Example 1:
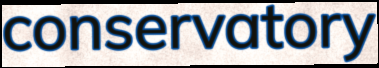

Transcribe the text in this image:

conservatory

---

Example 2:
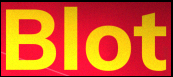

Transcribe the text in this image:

Blot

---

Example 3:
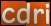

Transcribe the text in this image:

cdri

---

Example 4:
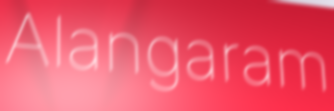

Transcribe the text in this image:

Alangaram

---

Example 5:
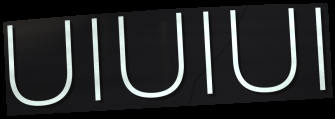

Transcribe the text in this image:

UIUIUI